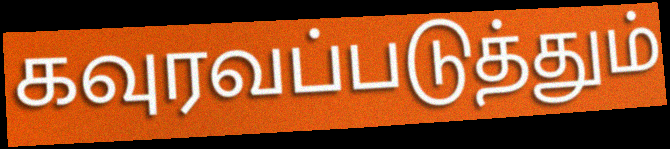
கவுரவப்படுத்தும்